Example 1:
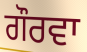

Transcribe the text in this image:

ਗੌਰਵਾ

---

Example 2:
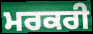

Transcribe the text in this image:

ਮਰਕਰੀ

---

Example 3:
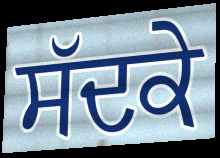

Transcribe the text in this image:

ਸੱਦਕੇ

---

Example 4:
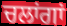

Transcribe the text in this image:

ਚਲਾਂਗਾਂ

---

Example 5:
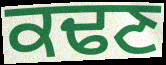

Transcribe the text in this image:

ਕਢਣ